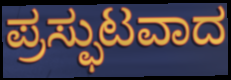
ಪ್ರಸ್ಫುಟವಾದ